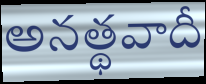
అనత్థవాదీ